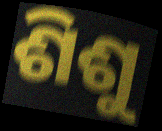
ଶିଶୁ